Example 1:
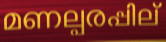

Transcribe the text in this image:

മണല്പരപ്പില്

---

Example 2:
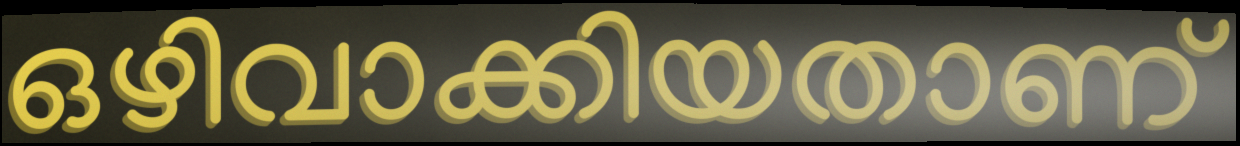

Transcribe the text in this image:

ഒഴിവാക്കിയതാണ്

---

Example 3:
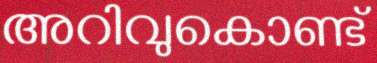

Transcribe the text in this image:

അറിവുകൊണ്ട്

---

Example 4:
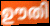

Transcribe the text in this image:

ഊതി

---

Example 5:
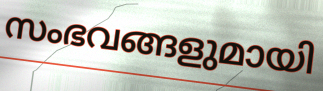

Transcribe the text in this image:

സംഭവങ്ങളുമായി